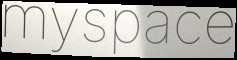
myspace